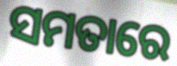
ସମତାରେ